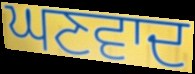
ਘਣਵਾਦ